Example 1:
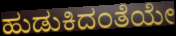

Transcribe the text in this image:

ಹುಡುಕಿದಂತೆಯೇ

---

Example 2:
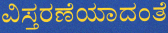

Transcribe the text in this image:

ವಿಸ್ತರಣೆಯಾದಂತೆ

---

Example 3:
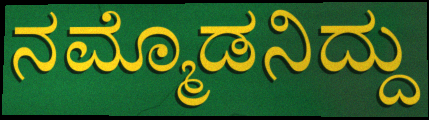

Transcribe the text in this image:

ನಮ್ಮೊಡನಿದ್ದು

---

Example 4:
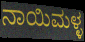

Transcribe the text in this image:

ನಾಯಿಮಳ್ಳ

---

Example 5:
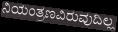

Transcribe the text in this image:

ನಿಯಂತ್ರಣವಿರುವುದಿಲ್ಲ